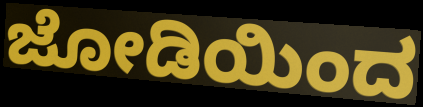
ಜೋಡಿಯಿಂದ